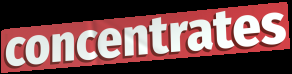
concentrates